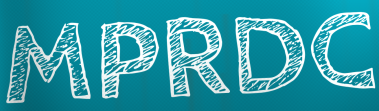
MPRDC